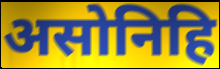
असोनिहि